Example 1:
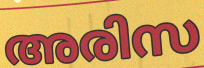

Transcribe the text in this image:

അരിസ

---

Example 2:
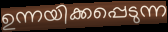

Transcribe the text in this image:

ഉന്നയിക്കപ്പെടുന്ന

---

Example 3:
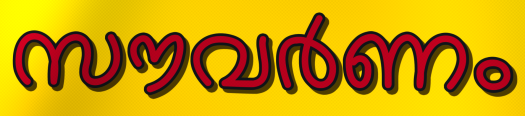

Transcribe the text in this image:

സൗവർണം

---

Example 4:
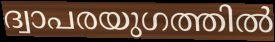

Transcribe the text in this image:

ദ്വാപരയുഗത്തിൽ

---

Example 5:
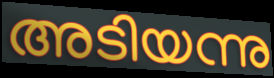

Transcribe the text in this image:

അടിയന്നു